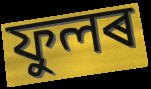
ফুলৰ